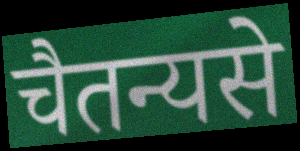
चैतन्यसे